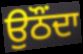
ਉਠੌਂਦਾ